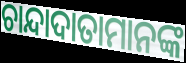
ଚାନ୍ଦାଦାତାମାନଙ୍କ